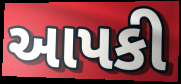
આપકી